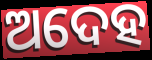
ଅଦେହ